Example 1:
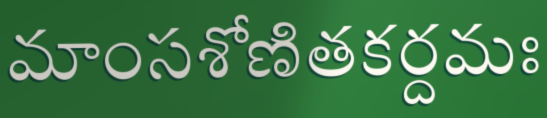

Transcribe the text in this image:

మాంసశోణితకర్దమః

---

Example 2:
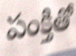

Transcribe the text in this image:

పంక్తితో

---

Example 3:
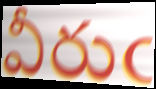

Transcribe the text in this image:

వీరుఁ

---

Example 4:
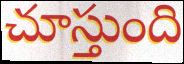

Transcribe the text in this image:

చూస్తుంది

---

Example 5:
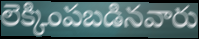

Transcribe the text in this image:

లెక్కింపబడినవారు